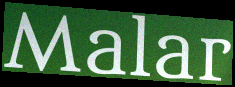
Malar